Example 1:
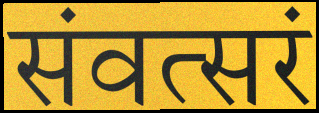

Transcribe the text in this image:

संवत्सरं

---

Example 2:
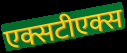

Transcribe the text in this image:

एक्सटीएक्स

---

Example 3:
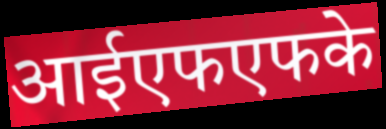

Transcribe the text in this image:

आईएफएफके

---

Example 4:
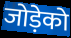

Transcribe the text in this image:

जोड़ेको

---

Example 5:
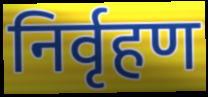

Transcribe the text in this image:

निर्वृहण